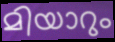
മിയാറും